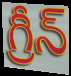
గ్రీన్